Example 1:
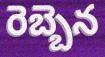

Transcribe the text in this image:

రెబ్బెన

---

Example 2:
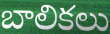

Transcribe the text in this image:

బాలికలు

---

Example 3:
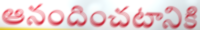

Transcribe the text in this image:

ఆనందించటానికి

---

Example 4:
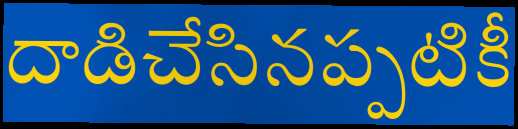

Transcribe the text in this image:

దాడిచేసినప్పటికీ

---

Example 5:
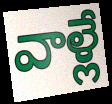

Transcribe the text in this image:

వాళ్లే